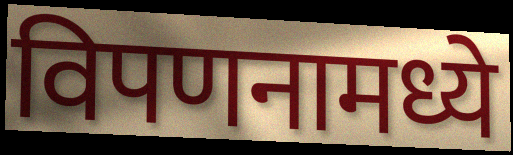
विपणनामध्ये